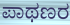
ಪಾಥಣರ